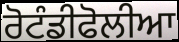
ਰੋਟੰਡੀਫੋਲੀਆ